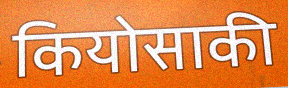
कियोसाकी